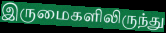
இருமைகளிலிருந்து